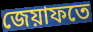
জেয়াফতে